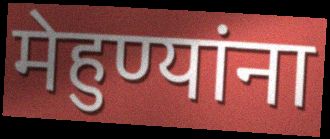
मेहुण्यांना